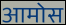
आमोस